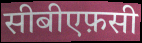
सीबीएफ़सी